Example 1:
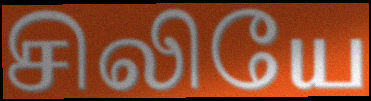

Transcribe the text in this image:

சிலியே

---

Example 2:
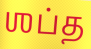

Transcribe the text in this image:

ஶப்த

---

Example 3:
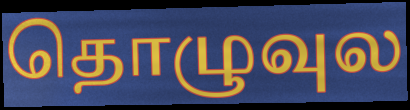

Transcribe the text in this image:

தொழுவுல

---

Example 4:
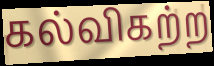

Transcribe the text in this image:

கல்விகற்ற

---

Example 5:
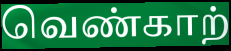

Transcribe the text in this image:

வெண்காற்